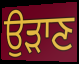
ਉਡ਼ਾਣ